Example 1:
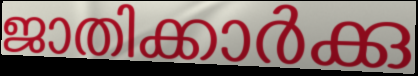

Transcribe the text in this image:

ജാതിക്കാർക്കു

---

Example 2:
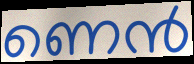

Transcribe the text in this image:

ണെൻ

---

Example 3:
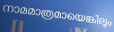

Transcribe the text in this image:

നാമമാത്രമായെങ്കിലും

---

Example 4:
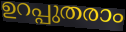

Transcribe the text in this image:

ഉറപ്പുതരാം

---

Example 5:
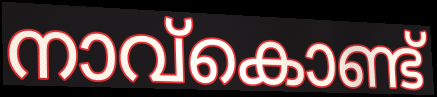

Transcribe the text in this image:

നാവ്കൊണ്ട്